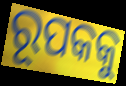
ରୂପକକୁ